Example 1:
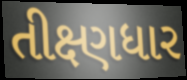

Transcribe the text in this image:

તીક્ષ્ણધાર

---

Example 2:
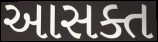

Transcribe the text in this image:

આસક્ત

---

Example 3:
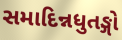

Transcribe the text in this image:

સમાદિન્નધુતઙ્ગો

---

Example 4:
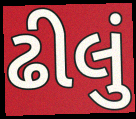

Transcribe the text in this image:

ઢીલું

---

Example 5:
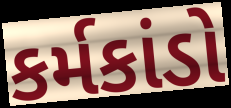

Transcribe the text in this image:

કર્મકાંડો